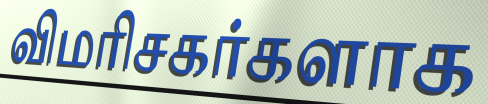
விமரிசகர்களாக